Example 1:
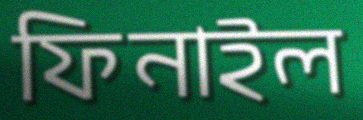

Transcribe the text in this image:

ফিনাইল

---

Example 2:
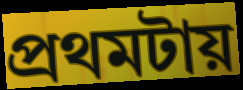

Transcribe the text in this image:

প্রথমটায়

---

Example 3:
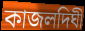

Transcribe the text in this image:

কাজলদিঘী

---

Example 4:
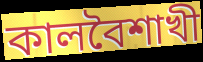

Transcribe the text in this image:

কালবৈশাখী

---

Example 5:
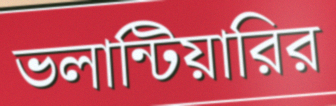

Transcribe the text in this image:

ভলান্টিয়ারির